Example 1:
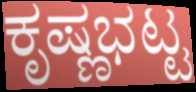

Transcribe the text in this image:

ಕೃಷ್ಣಭಟ್ಟ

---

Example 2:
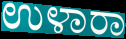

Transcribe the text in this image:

ಉಳಾರಾ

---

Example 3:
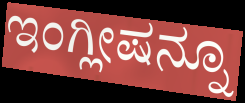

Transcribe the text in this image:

ಇಂಗ್ಲೀಷನ್ನೂ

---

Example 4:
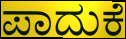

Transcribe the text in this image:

ಪಾದುಕೆ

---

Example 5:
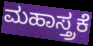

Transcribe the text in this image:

ಮಹಾಸ್ತ್ರಕೆ